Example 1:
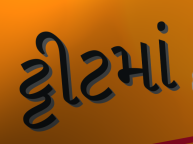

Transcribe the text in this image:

ટ્ટીટમાં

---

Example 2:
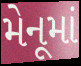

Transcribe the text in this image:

મેનૂમાં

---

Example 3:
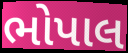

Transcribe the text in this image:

ભોપાલ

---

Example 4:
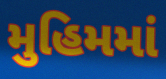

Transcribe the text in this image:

મુહિમમાં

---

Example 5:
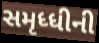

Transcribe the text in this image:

સમૃધ્ધીની